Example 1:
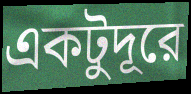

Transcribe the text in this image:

একটুদূরে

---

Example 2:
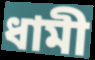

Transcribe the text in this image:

ধামী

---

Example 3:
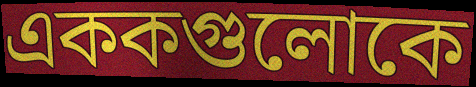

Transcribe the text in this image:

এককগুলোকে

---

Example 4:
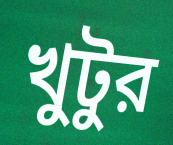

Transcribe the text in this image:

খুটুর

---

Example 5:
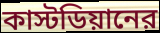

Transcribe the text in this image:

কাস্টডিয়ানের